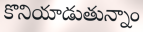
కొనియాడుతున్నాం